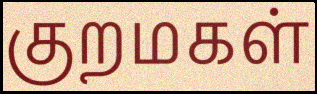
குறமகள்